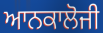
ਆਨਕਾਲੋਜੀ